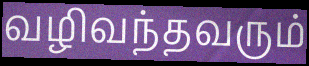
வழிவந்தவரும்